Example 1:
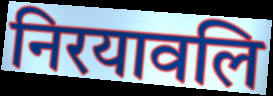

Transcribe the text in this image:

निरयावलि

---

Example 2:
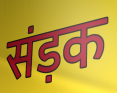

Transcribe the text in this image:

संड़क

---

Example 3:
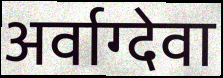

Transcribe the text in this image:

अर्वाग्देवा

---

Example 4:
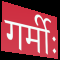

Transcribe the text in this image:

गर्मीः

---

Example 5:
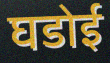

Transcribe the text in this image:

घडोई